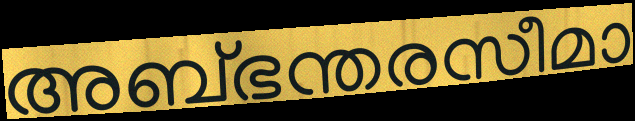
അബ്ഭന്തരസീമാ